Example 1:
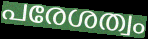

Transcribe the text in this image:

പരേശത്വം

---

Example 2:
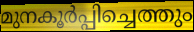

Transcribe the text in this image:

മുനകൂർപ്പിച്ചെത്തും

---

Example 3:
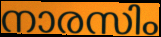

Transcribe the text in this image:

നാരസിം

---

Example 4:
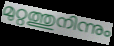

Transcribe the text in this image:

മുറ്റത്തുനിന്നും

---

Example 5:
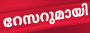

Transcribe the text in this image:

റേസറുമായി